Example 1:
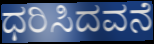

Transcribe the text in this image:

ಧರಿಸಿದವನೆ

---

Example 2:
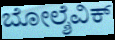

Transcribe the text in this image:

ಬೋಲ್ಶೆವಿಕ್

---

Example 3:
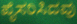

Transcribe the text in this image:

ಪೈಸರಿಸಿದವು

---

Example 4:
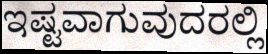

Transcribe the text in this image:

ಇಷ್ಟವಾಗುವುದರಲ್ಲಿ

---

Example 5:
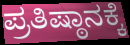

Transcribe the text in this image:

ಪ್ರತಿಷ್ಠಾನಕ್ಕೆ